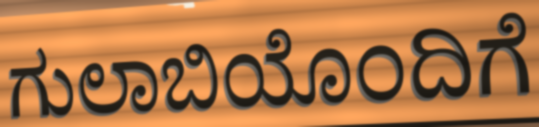
ಗುಲಾಬಿಯೊಂದಿಗೆ